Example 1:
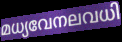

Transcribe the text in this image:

മധ്യവേനലവധി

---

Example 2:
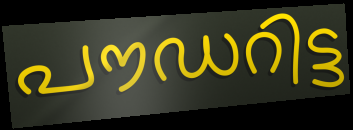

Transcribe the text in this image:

പൗഡറിട്ട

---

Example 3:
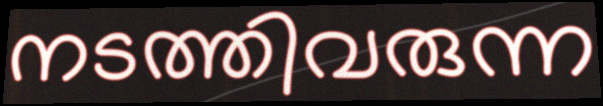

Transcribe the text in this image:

നടത്തിവരുന്ന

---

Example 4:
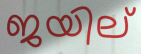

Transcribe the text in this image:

ജയില്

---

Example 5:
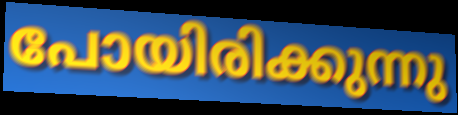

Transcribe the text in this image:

പോയിരിക്കുന്നു